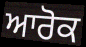
ਆਰੋਕ